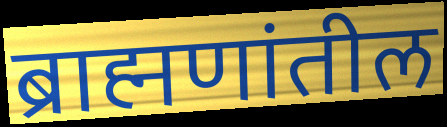
ब्राह्मणांतील